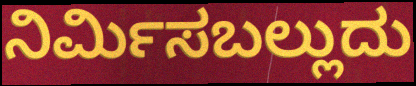
ನಿರ್ಮಿಸಬಲ್ಲುದು